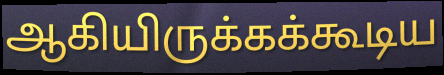
ஆகியிருக்கக்கூடிய